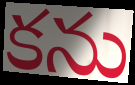
కను